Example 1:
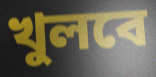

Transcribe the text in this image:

খুলবে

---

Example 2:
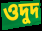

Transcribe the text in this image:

ওদুদ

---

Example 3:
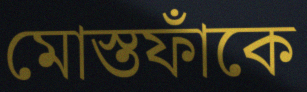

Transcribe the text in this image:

মোস্তফাঁকে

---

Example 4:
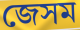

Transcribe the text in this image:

জেসম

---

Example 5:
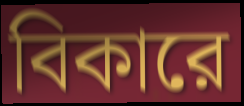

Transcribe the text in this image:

বিকারে